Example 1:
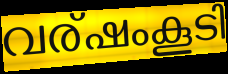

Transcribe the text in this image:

വര്ഷംകൂടി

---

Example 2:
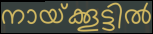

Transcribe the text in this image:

നായ്‌ക്കൂട്ടിൽ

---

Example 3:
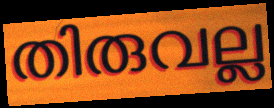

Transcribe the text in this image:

തിരുവല്ല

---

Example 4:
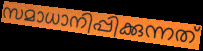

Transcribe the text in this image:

സമാധാനിപ്പിക്കുന്നത്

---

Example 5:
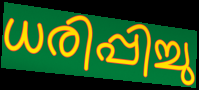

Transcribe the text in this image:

ധരിപ്പിച്ചു